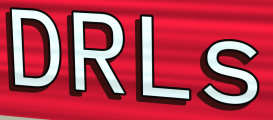
DRLs